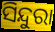
ସିନ୍ଦୁରା